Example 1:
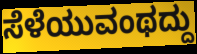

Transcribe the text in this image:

ಸೆಳೆಯುವಂಥದ್ದು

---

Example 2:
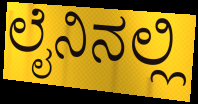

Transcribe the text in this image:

ಲೈನಿನಲ್ಲಿ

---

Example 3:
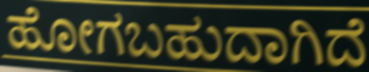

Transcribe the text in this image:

ಹೋಗಬಹುದಾಗಿದೆ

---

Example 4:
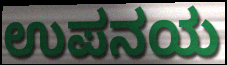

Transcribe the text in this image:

ಉಪನಯ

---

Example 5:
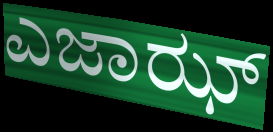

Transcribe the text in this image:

ಎಜಾಝ್